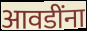
आवडींना